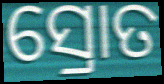
ସ୍ରୋତ